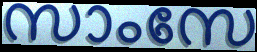
സാംസേ